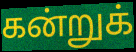
கன்றுக்